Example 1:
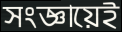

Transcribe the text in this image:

সংজ্ঞায়েই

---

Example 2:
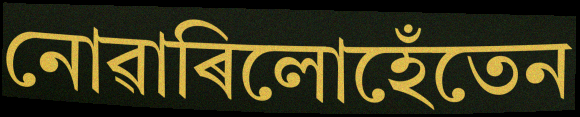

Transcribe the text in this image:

নোৱাৰিলোহেঁতেন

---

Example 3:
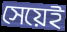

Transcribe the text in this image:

সেয়েই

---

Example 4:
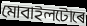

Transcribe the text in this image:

মোবাইলটোৰে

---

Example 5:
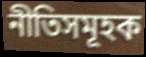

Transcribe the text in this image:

নীতিসমূহক